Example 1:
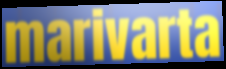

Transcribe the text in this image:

marivarta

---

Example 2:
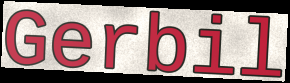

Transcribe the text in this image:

Gerbil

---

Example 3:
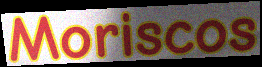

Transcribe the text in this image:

Moriscos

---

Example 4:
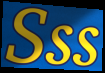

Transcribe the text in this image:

Sss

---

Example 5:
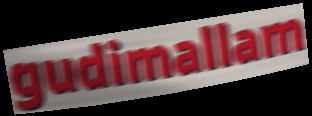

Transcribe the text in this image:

gudimallam